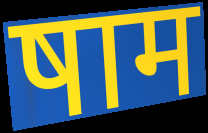
षाम